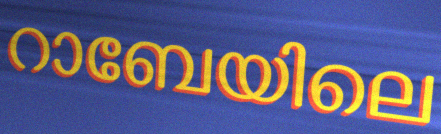
റാബേയിലെ